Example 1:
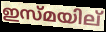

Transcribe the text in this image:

ഇസ്മയില്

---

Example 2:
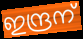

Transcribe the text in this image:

ഇന്ദ്രന്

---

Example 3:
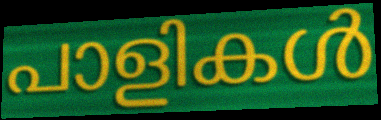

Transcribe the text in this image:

പാളികൾ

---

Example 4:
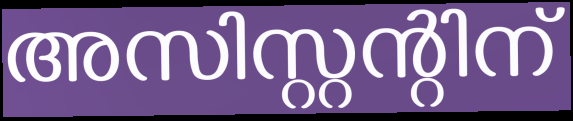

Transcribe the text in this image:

അസിസ്റ്റന്റിന്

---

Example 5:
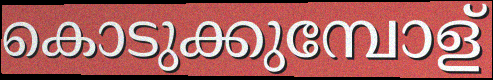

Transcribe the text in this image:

കൊടുക്കുമ്പോള്